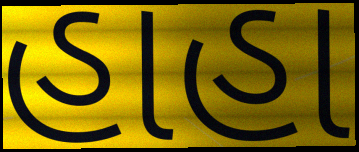
હાહા